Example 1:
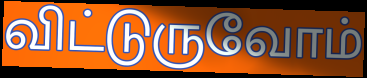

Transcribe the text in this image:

விட்டுருவோம்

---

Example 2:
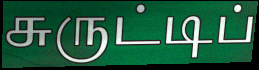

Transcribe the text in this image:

சுருட்டிப்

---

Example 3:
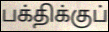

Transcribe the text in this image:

பக்திக்குப்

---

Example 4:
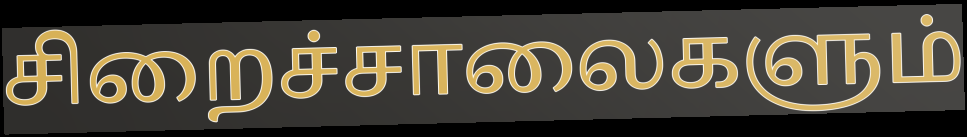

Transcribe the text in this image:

சிறைச்சாலைகளும்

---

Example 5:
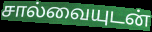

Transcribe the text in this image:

சால்வையுடன்